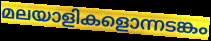
മലയാളികളൊന്നടങ്കം